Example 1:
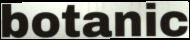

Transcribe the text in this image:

botanic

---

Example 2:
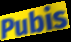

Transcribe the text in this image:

Pubis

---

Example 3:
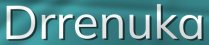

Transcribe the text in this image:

Drrenuka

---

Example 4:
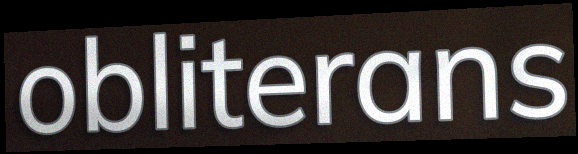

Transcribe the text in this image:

obliterans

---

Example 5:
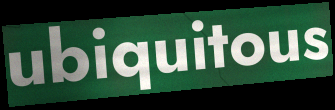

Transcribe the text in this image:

ubiquitous